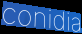
conidia